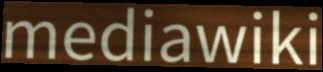
mediawiki